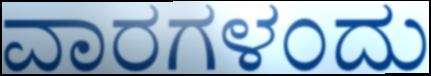
ವಾರಗಳಂದು